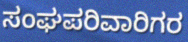
ಸಂಘಪರಿವಾರಿಗರ